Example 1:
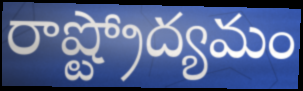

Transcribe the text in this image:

రాష్ట్రోద్యమం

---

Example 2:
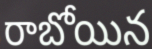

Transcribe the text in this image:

రాబోయిన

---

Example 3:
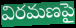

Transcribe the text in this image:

విరమణపై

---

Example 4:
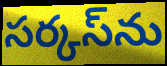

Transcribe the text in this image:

సర్కస్‌ను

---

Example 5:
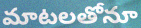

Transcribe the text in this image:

మాటలతోనూ